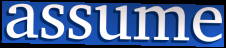
assume